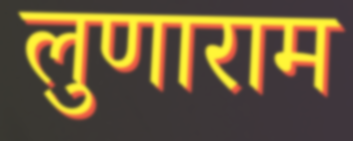
लुणाराम